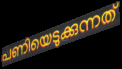
പണിയെടുക്കുന്നത്